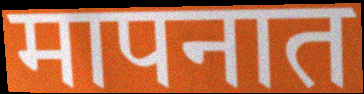
मापनात